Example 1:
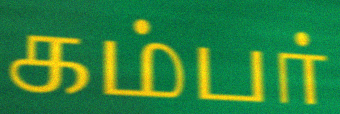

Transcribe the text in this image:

கம்பர்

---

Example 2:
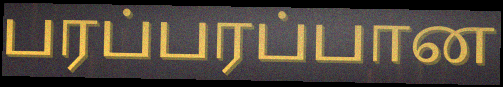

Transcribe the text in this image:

பரப்பரப்பான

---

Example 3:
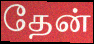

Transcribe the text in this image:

தேன்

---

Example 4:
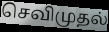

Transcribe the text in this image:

செவிமுதல்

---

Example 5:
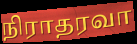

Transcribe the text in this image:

நிராதரவா